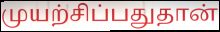
முயற்சிப்பதுதான்